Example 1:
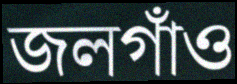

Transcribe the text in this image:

জলগাঁও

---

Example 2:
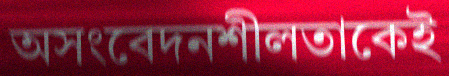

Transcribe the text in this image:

অসংবেদনশীলতাকেই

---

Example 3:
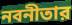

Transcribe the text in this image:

নবনীতার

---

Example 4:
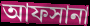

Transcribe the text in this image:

আফসানা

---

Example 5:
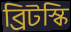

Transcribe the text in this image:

ব্রিটস্কি